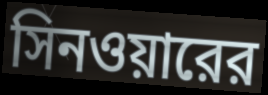
সিনওয়ারের